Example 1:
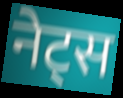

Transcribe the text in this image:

नेट्स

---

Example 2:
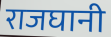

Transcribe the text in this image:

राजघानी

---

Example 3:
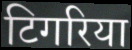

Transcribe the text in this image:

टिगरिया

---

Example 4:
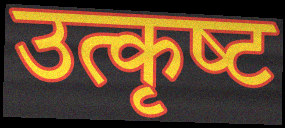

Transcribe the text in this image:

उत्‍कृष्‍ट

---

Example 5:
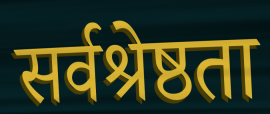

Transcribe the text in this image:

सर्वश्रेष्ठता